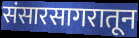
संसारसागरातून